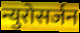
न्युरोसर्जन